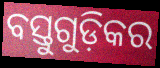
ବସ୍ତୁଗୁଡ଼ିକର